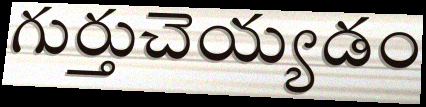
గుర్తుచెయ్యడం